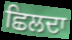
ਛਿਲਦਾ